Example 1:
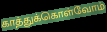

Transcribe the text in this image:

காத்துக்கொள்வோம்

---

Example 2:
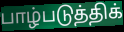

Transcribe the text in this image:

பாழ்படுத்திக்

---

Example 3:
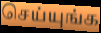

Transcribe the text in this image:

செய்யுங்க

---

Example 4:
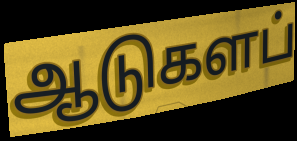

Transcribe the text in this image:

ஆடுகளப்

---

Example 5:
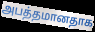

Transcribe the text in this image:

அபத்தமானதாக